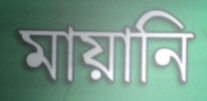
মায়ানি